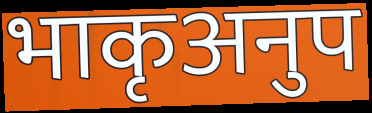
भाकृअनुप